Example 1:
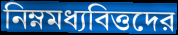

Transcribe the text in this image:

নিম্নমধ্যবিত্তদের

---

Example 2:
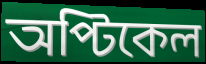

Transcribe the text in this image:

অপ্টিকেল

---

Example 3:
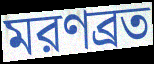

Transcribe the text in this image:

মরণব্রত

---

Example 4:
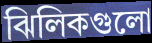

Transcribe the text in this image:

ঝিলিকগুলো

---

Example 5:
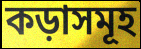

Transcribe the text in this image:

কড়াসমূহ